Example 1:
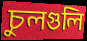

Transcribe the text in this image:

চুলগুলি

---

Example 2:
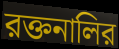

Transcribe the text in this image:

রক্তনালির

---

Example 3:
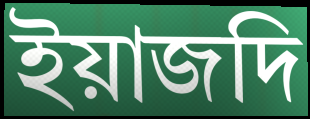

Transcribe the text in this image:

ইয়াজদি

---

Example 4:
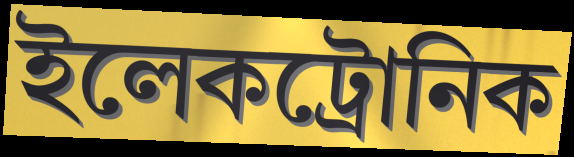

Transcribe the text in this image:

ইলেকট্রোনিক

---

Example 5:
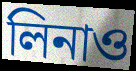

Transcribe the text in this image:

লিনাও